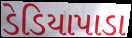
ડેડિયાપાડા